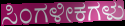
ಸಿಂಗಳೀಕಗಳು